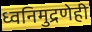
ध्वनिमुद्रणेही